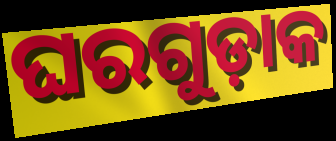
ଘରଗୁଡ଼ାକ